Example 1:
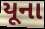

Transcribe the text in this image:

યૂના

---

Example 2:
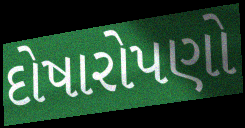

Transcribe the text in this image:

દોષારોપણો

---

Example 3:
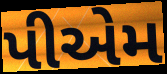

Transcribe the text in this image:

પીએમ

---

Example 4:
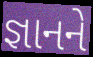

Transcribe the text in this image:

જ્ઞાનને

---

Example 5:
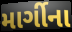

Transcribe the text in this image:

માર્ગીના